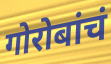
गोरोबांचं